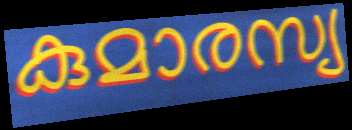
കുമാരസ്യ